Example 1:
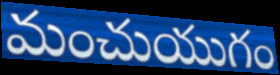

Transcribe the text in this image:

మంచుయుగం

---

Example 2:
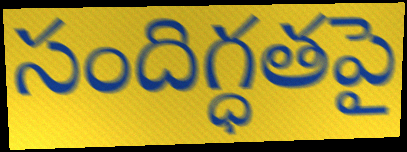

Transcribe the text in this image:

సందిగ్ధతపై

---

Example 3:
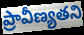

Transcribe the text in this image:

ప్రావీణ్యతని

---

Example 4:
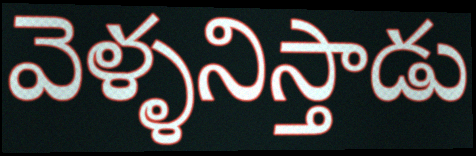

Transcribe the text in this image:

వెళ్ళనిస్తాడు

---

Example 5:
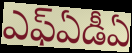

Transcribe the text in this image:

ఎఫ్ఏడీఏ